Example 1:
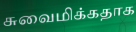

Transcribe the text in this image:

சுவைமிக்கதாக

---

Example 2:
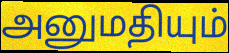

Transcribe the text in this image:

அனுமதியும்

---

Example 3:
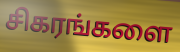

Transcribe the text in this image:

சிகரங்களை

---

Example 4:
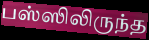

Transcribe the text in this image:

பஸ்ஸிலிருந்த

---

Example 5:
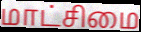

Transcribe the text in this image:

மாட்சிமை